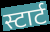
स्टार्ट